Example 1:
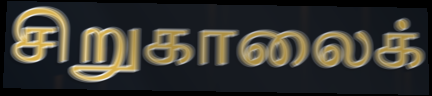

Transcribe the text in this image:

சிறுகாலைக்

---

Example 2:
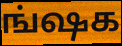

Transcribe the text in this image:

ங்ஷக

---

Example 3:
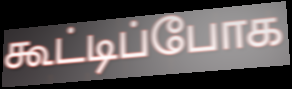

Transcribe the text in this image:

கூட்டிப்போக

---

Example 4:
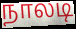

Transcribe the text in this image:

நாலடி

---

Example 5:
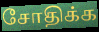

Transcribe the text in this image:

சோதிக்க